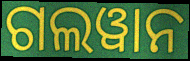
ଗଲୱାନ